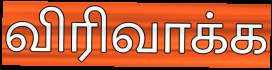
விரிவாக்க